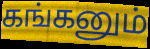
கங்கனும்